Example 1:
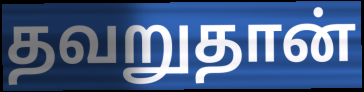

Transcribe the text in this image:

தவறுதான்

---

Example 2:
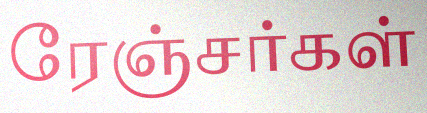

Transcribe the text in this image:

ரேஞ்சர்கள்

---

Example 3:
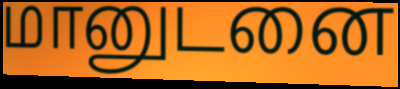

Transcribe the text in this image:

மானுடனை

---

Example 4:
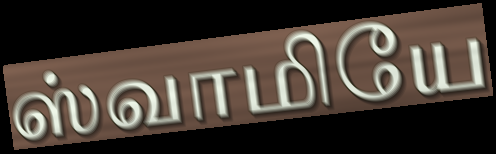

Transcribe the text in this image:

ஸ்வாமியே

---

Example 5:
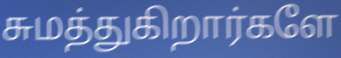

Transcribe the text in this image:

சுமத்துகிறார்களே